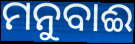
ମନୁବାଈ